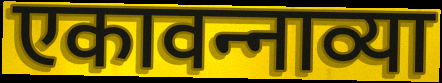
एकावन्नाव्या